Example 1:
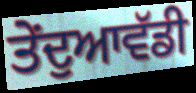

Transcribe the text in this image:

ਤੇਂਦੁਆਵੱਡੀ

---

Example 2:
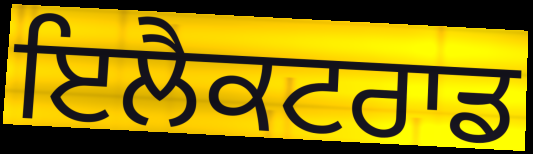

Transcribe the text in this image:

ਇਲੈਕਟਰਾਡ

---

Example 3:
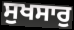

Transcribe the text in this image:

ਸੁਖਸਾਰੁ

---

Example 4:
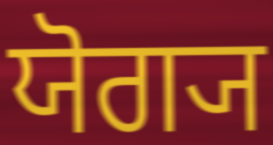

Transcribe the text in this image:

ਯੋਗ੍ਯ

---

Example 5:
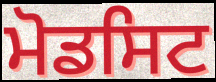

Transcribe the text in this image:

ਮੋਡਸਿਟ